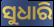
ସୁଧାରି